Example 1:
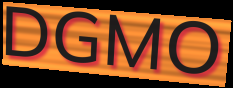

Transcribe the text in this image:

DGMO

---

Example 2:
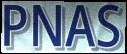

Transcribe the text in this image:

PNAS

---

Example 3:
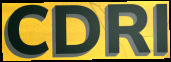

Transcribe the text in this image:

CDRI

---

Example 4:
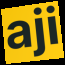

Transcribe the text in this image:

aji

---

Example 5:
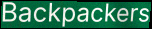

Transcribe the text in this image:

Backpackers